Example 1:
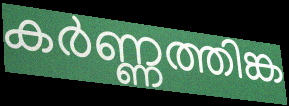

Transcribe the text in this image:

കർണ്ണത്തിങ്ക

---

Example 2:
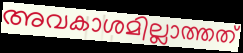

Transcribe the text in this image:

അവകാശമില്ലാത്തത്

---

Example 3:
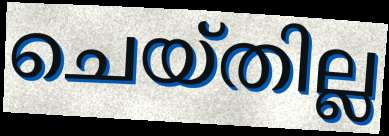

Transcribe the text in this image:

ചെയ്തില്ല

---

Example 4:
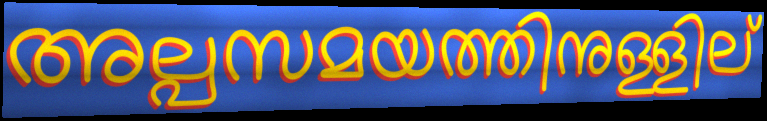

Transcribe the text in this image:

അല്പസമയത്തിനുള്ളില്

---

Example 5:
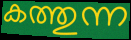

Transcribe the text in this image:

കത്തുന്ന